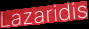
Lazaridis